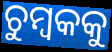
ଚୁମ୍ୱକକୁ